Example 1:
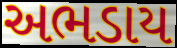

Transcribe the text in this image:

અભડાય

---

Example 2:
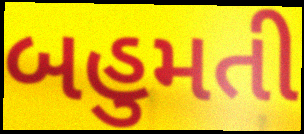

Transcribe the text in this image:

બહુમતી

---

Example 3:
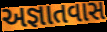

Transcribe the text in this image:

અજ્ઞાતવાસ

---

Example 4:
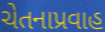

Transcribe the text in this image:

ચેતનાપ્રવાહ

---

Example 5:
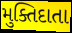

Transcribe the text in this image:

મુક્તિદાતા